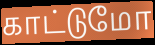
காட்டுமோ